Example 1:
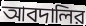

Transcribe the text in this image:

আবদালির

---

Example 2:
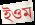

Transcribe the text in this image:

ইওম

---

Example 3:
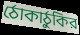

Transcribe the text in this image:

ঠোকাঠুকির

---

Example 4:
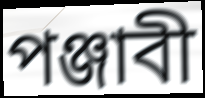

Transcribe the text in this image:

পঞ্জাবী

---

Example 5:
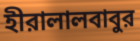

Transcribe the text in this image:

হীরালালবাবুর